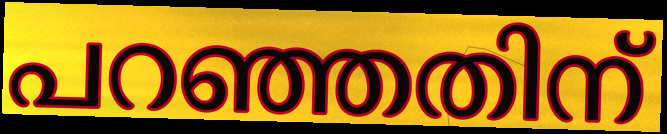
പറഞ്ഞതിന്